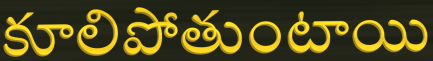
కూలిపోతుంటాయి